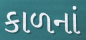
કાળનાં